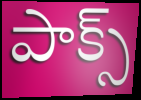
పాక్స్